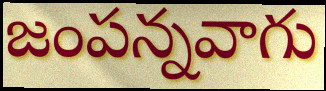
జంపన్నవాగు